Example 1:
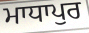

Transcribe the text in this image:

ਮਾਧਾਪੁਰ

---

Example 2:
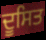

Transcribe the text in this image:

ਦੂਸਿਤ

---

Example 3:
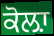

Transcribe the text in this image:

ਕੋਲ਼ਾ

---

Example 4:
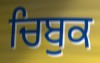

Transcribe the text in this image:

ਚਿਬੁਕ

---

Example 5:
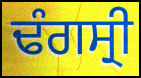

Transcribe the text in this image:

ਢੰਗਸ੍ਰੀ